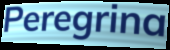
Peregrina